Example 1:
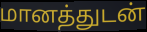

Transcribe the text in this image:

மானத்துடன்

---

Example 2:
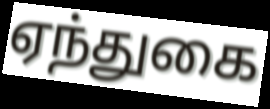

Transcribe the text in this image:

ஏந்துகை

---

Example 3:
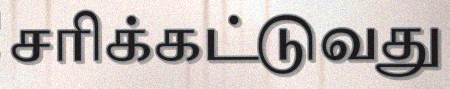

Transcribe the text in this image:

சரிக்கட்டுவது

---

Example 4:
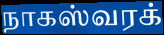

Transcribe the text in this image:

நாகஸ்வரக்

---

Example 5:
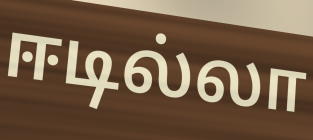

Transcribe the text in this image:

ஈடில்லா